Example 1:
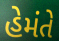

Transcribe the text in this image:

હેમંતે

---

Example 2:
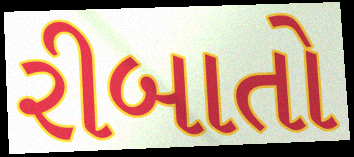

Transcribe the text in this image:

રીબાતો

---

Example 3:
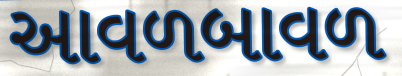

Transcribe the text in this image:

આવળબાવળ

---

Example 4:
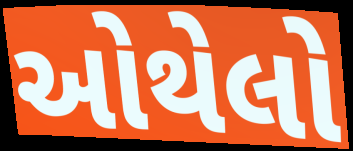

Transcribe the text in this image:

ઓથેલો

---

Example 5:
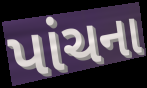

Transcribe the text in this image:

પાંચના